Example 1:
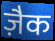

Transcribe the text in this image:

ज़ैक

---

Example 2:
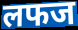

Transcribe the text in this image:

लफज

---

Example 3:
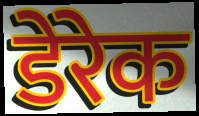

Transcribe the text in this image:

डेरेक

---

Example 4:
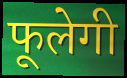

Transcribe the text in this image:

फूलेगी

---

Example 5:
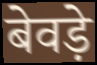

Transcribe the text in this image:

बेवड़े